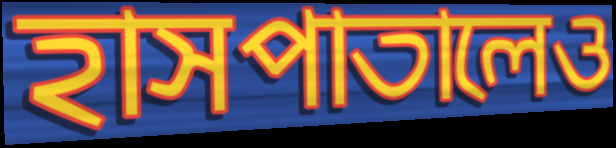
হাসপাতালেও